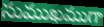
సుముఖముగా